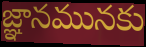
జ్ఞానమునకు